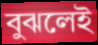
বুঝলেই